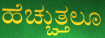
ಹೆಚ್ಚುತ್ತಲೂ